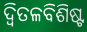
ଦ୍ୱିତଳବିଶିଷ୍ଟ